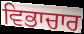
ਵਿਭਾਚਾਰ